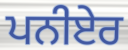
ਪਨੀਏਰ